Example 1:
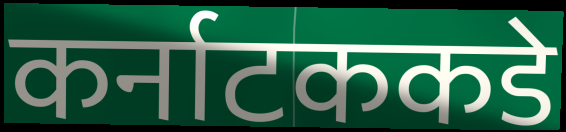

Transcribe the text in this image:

कर्नाटककडे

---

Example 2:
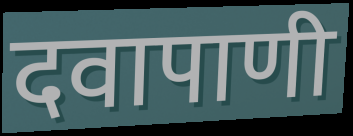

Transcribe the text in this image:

दवापाणी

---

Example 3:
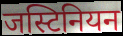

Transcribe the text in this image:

जस्टिनियन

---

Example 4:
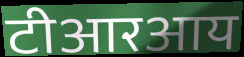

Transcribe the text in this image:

टीआरआय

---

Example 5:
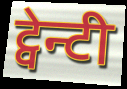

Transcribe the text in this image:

ट्वेन्टी